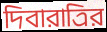
দিবারাত্রির